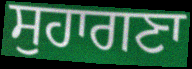
ਸੁਹਾਗਣਾ